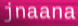
jnaana